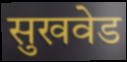
सुखवेड